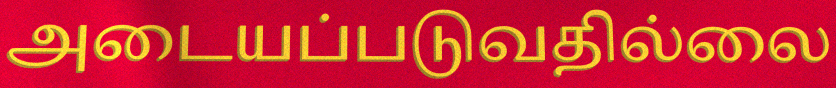
அடையப்படுவதில்லை